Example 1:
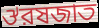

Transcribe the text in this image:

ঔরষজাত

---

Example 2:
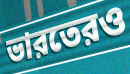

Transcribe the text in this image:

ভারতেরও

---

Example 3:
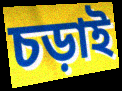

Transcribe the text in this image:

চড়াই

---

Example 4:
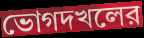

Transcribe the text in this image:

ভোগদখলের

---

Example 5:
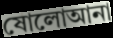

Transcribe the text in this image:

ষোলোআনা